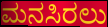
ಮನಸಿರಲು